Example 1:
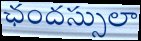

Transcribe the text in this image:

ఛందస్సులా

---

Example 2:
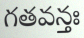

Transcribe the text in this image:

గతవన్తః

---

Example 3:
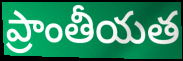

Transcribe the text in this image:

ప్రాంతీయత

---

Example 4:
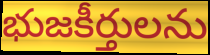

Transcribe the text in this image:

భుజకీర్తులను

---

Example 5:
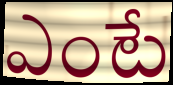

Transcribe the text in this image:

ఎంటే